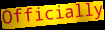
Officially